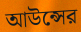
আউন্সের